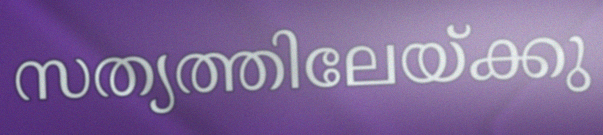
സത്യത്തിലേയ്ക്കു